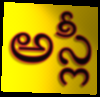
అస్లీ